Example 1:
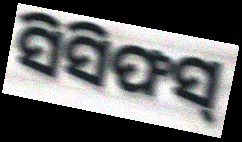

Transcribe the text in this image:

ସିସିଫସ୍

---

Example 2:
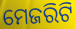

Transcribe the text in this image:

ମେଜରିଟି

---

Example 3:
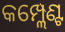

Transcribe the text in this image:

କମ୍ପ୍ଲେଣ୍ଟ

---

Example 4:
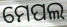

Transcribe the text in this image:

ମେପଲ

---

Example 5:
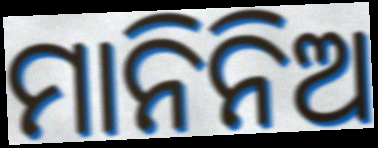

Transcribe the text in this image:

ମାନିନିଅ